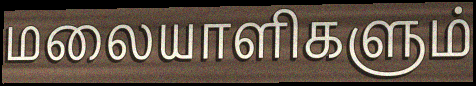
மலையாளிகளும்